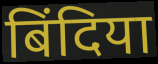
बिंदिया